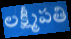
లక్ష్మీపతి